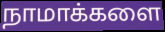
நாமாக்களை